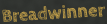
Breadwinner